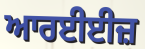
ਆਰਈਈਜ਼